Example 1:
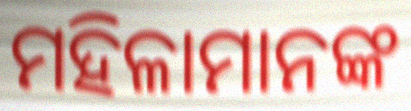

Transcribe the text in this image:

ମହିଳାମାନଙ୍କ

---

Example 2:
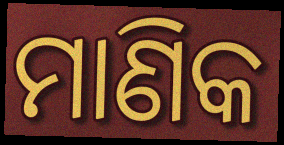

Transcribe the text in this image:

ମାଣିକ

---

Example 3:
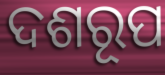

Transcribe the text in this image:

ଦଶରୂପ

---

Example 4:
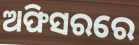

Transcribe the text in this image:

ଅଫିସରରେ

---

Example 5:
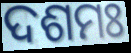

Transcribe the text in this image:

ଦଶମଃ